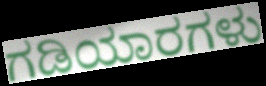
ಗಡಿಯಾರಗಳು